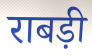
राबड़ी